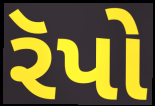
રૅપો